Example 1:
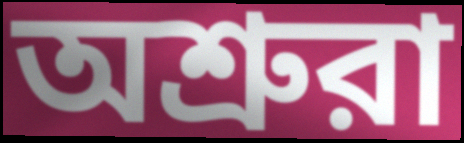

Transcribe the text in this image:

অশ্রুরা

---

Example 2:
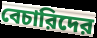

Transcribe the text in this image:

বেচারিদের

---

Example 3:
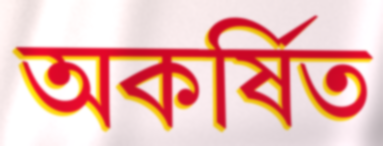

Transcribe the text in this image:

অকর্ষিত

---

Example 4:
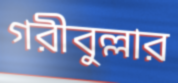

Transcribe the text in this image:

গরীবুল্লার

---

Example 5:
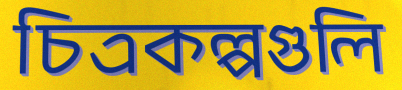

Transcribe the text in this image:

চিত্রকল্পগুলি